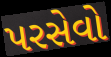
પરસેવો